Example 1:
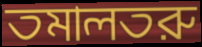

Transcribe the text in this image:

তমালতরু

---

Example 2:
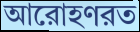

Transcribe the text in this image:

আরোহণরত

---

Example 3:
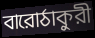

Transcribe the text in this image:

বারোঠাকুরী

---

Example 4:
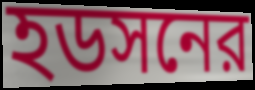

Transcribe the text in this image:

হডসনের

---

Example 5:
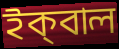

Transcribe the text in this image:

ইক্‌বাল